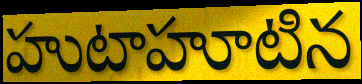
హుటాహూటిన